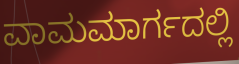
ವಾಮಮಾರ್ಗದಲ್ಲಿ